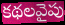
కథలవైపు